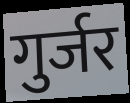
गुर्जर